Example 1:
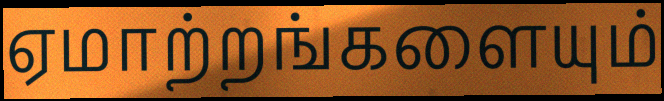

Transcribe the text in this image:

ஏமாற்றங்களையும்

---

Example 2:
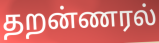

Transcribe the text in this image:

தறன்ணரல்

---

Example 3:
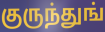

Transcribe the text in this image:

குருந்துங்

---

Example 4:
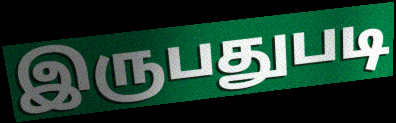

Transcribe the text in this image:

இருபதுபடி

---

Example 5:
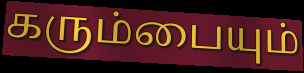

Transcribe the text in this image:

கரும்பையும்